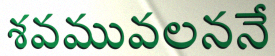
శవమువలననే